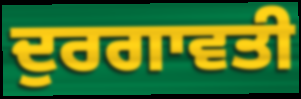
ਦੁਰਗਾਵਤੀ